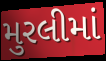
મુરલીમાં